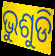
ଭୁଶୁଡି